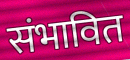
संभावित